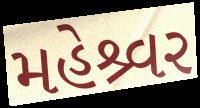
મહેશ્ર્વર